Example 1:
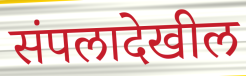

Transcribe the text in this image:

संपलादेखील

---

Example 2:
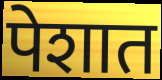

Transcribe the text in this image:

पेशात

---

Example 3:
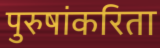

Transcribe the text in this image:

पुरुषांकरिता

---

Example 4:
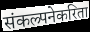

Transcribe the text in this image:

संकल्पनेकरिता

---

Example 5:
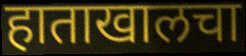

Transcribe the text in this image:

हाताखालचा